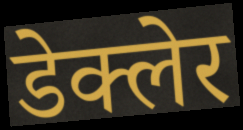
डेक्लेर